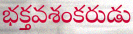
భక్తవశంకరుడు